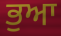
ਭੁਆ